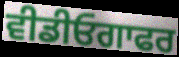
ਵੀਡੀਓਗਾਫਰ